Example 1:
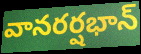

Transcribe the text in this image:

వానరర్షభాన్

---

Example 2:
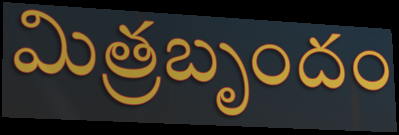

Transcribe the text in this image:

మిత్రబృందం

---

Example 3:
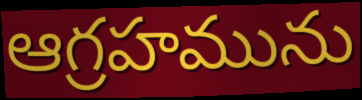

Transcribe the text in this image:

ఆగ్రహమును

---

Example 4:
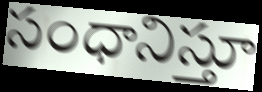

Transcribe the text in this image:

సంధానిస్తూ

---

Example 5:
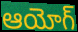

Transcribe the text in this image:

ఆయోగ్